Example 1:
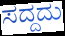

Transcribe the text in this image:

ಸದ್ದದು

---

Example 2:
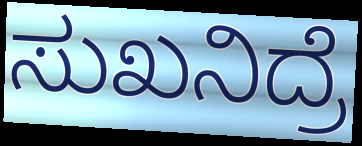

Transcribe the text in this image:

ಸುಖನಿದ್ರೆ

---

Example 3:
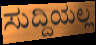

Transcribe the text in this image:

ಸುದ್ದಿಯಲ್ಲ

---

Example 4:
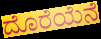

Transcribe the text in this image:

ದೊರೆಯೆನೆ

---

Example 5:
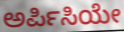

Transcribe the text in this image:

ಅರ್ಪಿಸಿಯೇ